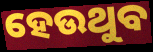
ହେଉଥୁବ